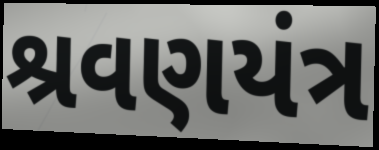
શ્રવણયંત્ર